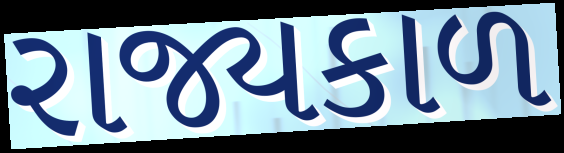
રાજ્યકાળ